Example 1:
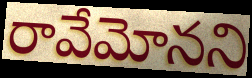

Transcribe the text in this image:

రావేమోనని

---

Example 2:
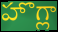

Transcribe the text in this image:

హొగ్లా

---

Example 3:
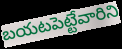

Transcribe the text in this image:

బయటపెట్టేవారిని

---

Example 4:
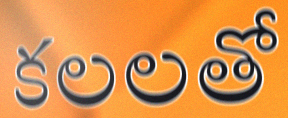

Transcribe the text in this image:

కలలతో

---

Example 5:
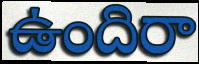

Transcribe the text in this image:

ఉందిరా